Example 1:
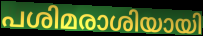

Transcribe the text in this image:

പശിമരാശിയായി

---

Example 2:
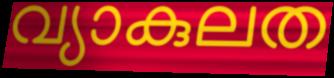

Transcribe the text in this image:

വ്യാകുലത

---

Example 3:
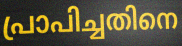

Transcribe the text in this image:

പ്രാപിച്ചതിനെ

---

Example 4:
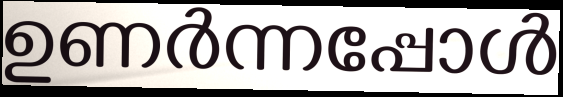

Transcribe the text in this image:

ഉണർന്നപ്പോൾ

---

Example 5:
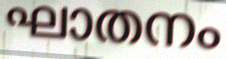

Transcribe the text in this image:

ഘാതനം